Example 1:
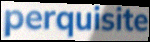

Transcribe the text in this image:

perquisite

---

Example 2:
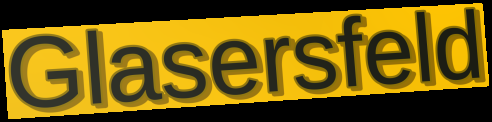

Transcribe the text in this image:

Glasersfeld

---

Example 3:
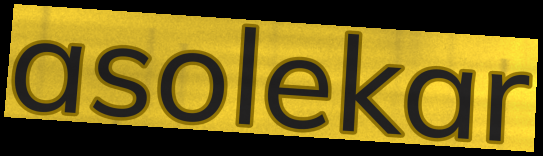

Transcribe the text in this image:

asolekar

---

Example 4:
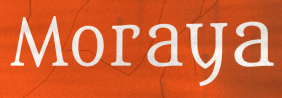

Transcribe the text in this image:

Moraya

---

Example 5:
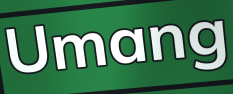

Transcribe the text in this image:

Umang